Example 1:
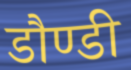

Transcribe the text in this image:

डौण्डी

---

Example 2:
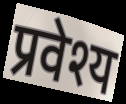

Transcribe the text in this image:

प्रवेश्य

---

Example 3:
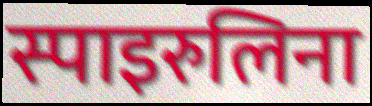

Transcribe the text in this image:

स्पाइरुलिना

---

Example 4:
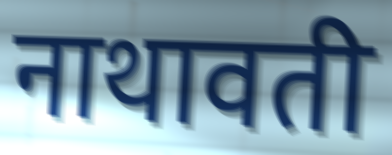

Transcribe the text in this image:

नाथावती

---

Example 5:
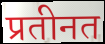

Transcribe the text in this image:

प्रतीनत